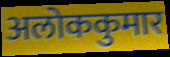
अलोककुमार